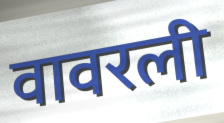
वावरली